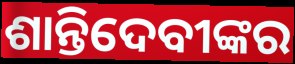
ଶାନ୍ତିଦେବୀଙ୍କର